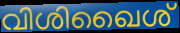
വിശിഖൈശ്